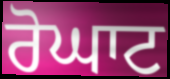
ਰੋਘਾਟ